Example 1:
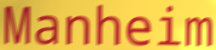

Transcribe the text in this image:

Manheim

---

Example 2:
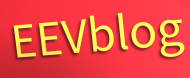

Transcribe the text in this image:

EEVblog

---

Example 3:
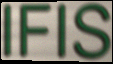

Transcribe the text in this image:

IFIS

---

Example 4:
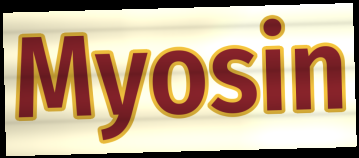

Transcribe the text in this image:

Myosin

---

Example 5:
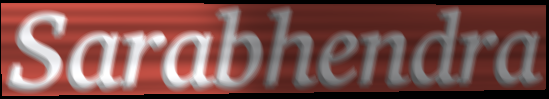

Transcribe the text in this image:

Sarabhendra